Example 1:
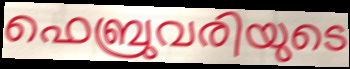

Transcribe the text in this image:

ഫെബ്രുവരിയുടെ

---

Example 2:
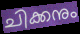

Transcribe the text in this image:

ചിക്കനും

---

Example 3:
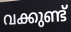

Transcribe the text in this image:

വക്കുണ്ട്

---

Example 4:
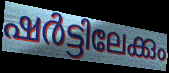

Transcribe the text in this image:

ഷർട്ടിലേക്കും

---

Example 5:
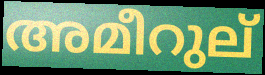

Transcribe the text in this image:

അമീറുല്